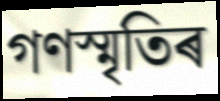
গণস্মৃতিৰ